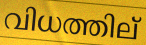
വിധത്തില്